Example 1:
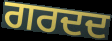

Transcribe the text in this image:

ਗਰਦਦ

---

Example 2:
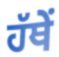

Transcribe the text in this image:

ਹੱਥੇਂ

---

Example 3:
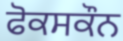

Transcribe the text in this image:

ਫੋਕਸਕੌਨ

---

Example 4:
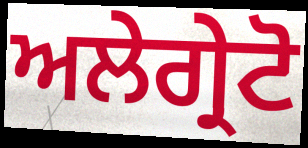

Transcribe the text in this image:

ਅਲੇਗ੍ਰੇਟੋ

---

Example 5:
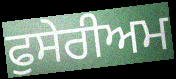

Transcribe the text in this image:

ਫੁਸੇਰੀਅਮ